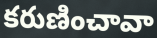
కరుణించావా